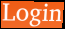
Login